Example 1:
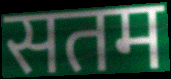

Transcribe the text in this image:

सतम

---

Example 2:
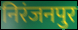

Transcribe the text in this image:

निरंजनपुर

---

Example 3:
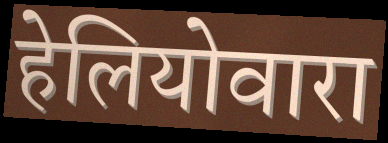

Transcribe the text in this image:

हेलियोवारा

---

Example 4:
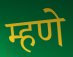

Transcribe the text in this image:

म्हणे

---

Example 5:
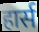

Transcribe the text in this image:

हार्स